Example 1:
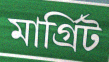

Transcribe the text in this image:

মাৰ্গ্ৰিট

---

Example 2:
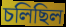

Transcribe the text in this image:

চলিছিল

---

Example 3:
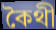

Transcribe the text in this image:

কৈথী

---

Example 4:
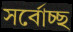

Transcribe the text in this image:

সৰ্বোচ্ছ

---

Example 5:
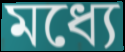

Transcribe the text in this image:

মধ্যে